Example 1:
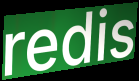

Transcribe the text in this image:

redis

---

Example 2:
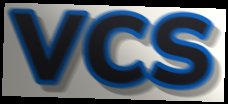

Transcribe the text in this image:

vcs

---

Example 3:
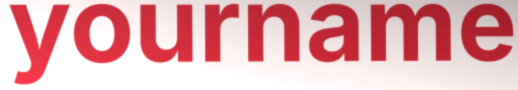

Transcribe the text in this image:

yourname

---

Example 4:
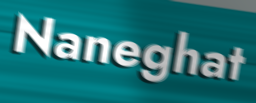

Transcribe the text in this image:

Naneghat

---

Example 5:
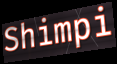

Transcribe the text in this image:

Shimpi